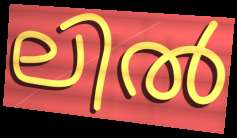
ലിൽ